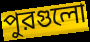
পুরগুলো